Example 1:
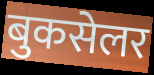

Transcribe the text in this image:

बुकसेलर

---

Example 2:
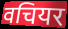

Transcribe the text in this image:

वचियर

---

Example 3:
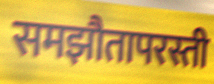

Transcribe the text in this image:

समझौतापरस्ती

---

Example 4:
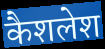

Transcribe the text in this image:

कैशलेश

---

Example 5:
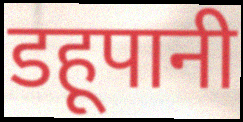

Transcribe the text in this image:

डहूपानी